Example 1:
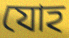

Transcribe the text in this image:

যোহ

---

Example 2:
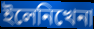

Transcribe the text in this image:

ইলেনিখেনা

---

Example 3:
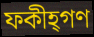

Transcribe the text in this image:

ফকীহ্গণ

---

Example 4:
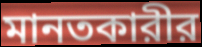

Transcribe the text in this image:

মানতকারীর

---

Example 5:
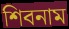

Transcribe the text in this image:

শিবনাম